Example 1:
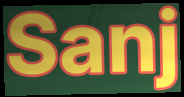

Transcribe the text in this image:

Sanj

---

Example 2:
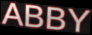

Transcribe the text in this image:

ABBY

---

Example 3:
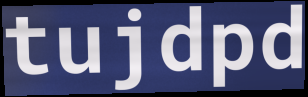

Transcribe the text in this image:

tujdpd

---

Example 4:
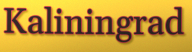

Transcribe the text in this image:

Kaliningrad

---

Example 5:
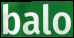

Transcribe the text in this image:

balo